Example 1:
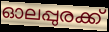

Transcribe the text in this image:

ഓലപ്പുരക്ക്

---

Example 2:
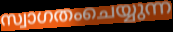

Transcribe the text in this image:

സ്വാഗതംചെയ്യുന്ന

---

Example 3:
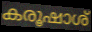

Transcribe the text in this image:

കരൂഷാശ്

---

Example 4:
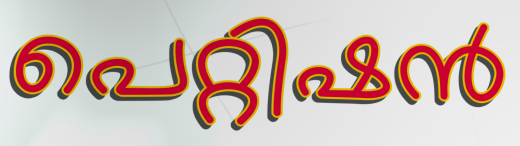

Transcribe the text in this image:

പെറ്റിഷൻ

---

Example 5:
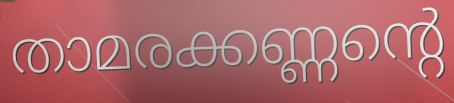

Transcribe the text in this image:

താമരക്കണ്ണന്റെ